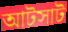
আটসাট